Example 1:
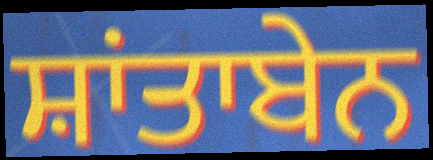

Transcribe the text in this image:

ਸ਼ਾਂਤਾਬੇਨ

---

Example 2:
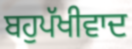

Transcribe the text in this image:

ਬਹੁਪੱਖੀਵਾਦ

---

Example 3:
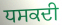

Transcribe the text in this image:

ਧਸਕਦੀ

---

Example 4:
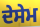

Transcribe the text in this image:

ਦੇਸੇਮ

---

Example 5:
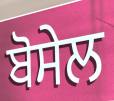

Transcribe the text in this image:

ਬੋਸੇਲ